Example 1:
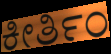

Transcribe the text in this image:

ಕೀರ್ತಿಂ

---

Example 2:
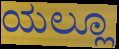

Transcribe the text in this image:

ಯಲ್ಲೂ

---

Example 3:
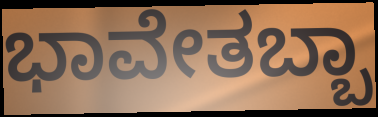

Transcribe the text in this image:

ಭಾವೇತಬ್ಬಾ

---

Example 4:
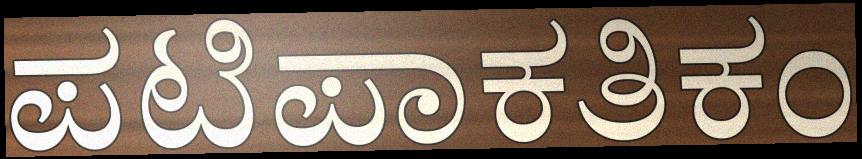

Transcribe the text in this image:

ಪಟಿಪಾಕತಿಕಂ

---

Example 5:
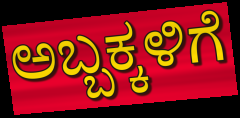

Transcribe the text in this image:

ಅಬ್ಬಕ್ಕಳಿಗೆ